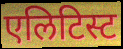
एलिटिस्ट